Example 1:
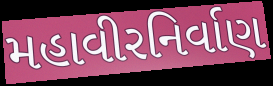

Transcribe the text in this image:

મહાવીરનિર્વાણ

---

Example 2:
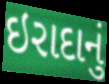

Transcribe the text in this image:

ઇરાદાનું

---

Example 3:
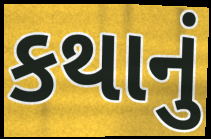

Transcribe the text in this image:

કથાનું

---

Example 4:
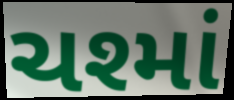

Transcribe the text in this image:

ચશ્માં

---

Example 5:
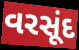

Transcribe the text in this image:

વરસૂંદ